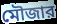
মৌজার